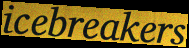
icebreakers